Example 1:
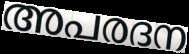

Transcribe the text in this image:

അപരദന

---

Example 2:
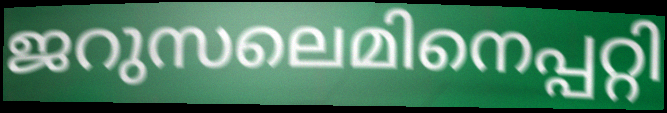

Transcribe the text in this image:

ജറുസലെമിനെപ്പറ്റി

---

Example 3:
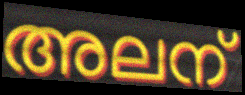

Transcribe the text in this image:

അലന്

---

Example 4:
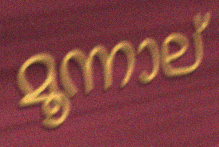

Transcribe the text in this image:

മൂന്നാല്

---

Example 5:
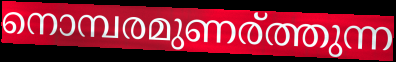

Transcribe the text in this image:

നൊമ്പരമുണര്ത്തുന്ന